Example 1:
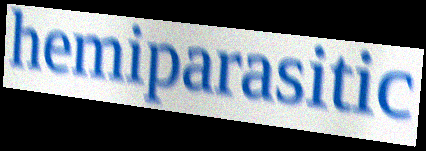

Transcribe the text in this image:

hemiparasitic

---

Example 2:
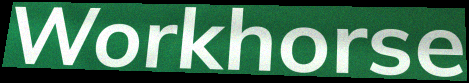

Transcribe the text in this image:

Workhorse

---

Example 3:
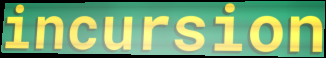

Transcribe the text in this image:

incursion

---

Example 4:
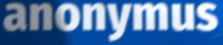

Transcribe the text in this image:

anonymus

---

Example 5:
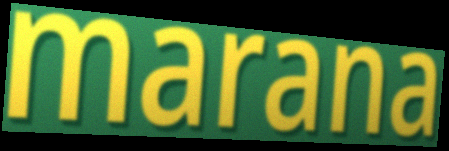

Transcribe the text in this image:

marana